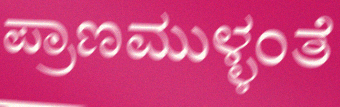
ಪ್ರಾಣಮುಳ್ಳಂತೆ